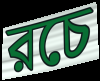
রচে